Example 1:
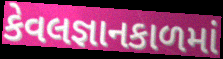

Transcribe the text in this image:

કેવલજ્ઞાનકાળમાં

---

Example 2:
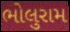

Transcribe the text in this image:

ભોલુરામ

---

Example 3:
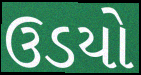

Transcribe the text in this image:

ઉડયો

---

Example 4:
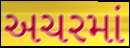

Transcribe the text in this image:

અચરમાં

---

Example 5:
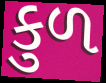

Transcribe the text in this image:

કુળ